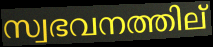
സ്വഭവനത്തില്